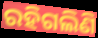
ରହିଗଲିଣି